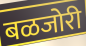
बळजोरी